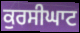
ਕੁਰਸੀਘਾਟ